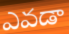
ఎవడా